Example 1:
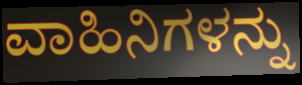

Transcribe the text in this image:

ವಾಹಿನಿಗಳನ್ನು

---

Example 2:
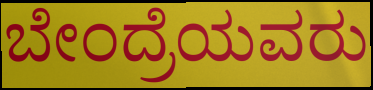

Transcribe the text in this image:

ಬೇಂದ್ರೆಯವರು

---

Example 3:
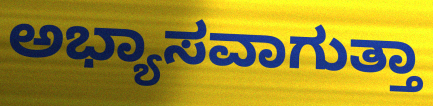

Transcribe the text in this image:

ಅಭ್ಯಾಸವಾಗುತ್ತಾ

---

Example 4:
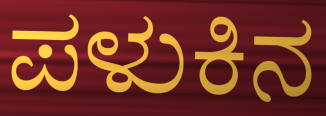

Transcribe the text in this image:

ಪಳುಕಿನ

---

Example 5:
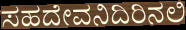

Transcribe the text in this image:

ಸಹದೇವನಿದಿರಿನಲಿ